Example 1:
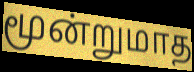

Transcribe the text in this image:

மூன்றுமாத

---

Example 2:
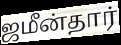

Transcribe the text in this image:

ஜமீன்தார்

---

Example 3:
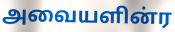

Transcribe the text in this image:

அவையளின்ர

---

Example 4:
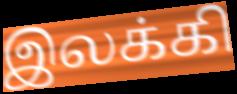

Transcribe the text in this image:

இலக்கி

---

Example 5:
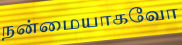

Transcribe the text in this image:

நன்மையாகவோ